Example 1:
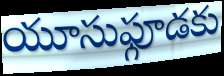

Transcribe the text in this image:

యూసుఫ్గూడకు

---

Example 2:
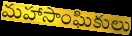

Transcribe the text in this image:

మహాసాంఘికులు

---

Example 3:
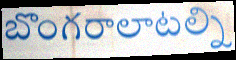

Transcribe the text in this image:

బొంగరాలాటల్ని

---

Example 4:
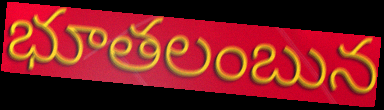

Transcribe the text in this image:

భూతలంబున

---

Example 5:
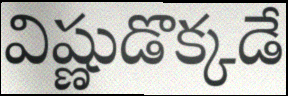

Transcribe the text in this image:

విష్ణుడొక్కడే